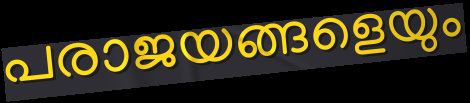
പരാജയങ്ങളെയും